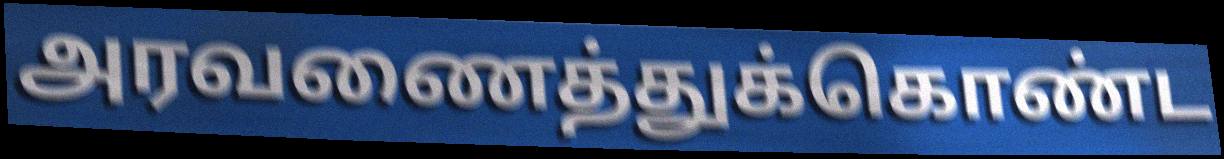
அரவணைத்துக்கொண்ட